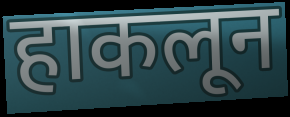
हाकलून